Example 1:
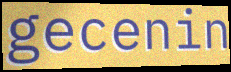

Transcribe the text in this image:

gecenin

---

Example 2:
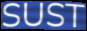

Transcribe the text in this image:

SUST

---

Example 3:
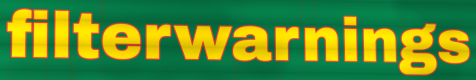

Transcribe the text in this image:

filterwarnings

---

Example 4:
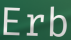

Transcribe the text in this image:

Erb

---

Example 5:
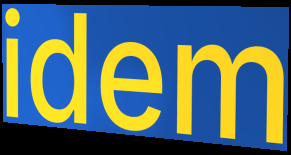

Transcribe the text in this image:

idem